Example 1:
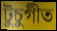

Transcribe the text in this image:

টুচুগীত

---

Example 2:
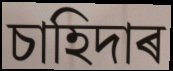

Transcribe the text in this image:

চাহিদাৰ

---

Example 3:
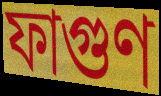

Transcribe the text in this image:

ফাগুণ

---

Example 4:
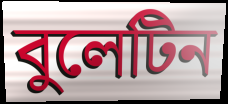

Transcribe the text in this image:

বুলেটিন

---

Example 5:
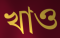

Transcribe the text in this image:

খাও